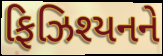
ફિઝિશ્યનને